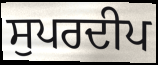
ਸੁਪਰਦੀਪ